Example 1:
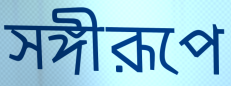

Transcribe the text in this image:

সঙ্গীরূপে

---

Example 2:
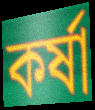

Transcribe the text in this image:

কর্ষা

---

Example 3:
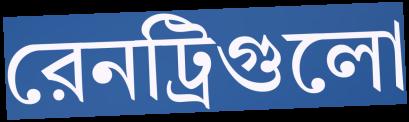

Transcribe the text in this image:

রেনট্রিগুলো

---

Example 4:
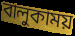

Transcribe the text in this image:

বালুকাময়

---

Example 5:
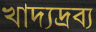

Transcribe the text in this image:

খাদ্যদ্রব্য